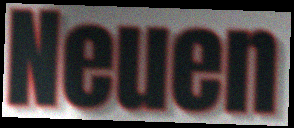
Neuen